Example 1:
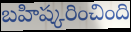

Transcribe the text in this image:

బహిష్కరించింది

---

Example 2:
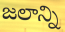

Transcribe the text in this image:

జలాన్ని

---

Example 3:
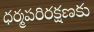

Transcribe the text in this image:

ధర్మపరిరక్షణకు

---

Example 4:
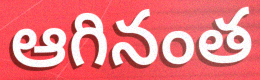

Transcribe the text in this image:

ఆగినంత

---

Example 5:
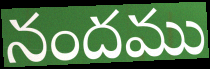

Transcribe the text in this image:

నందము